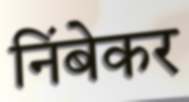
निंबेकर